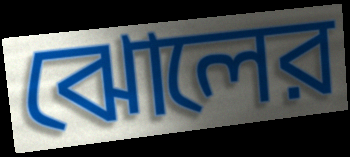
ঝোলের